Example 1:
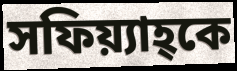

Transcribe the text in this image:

সফিয়্যাহ্কে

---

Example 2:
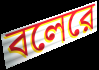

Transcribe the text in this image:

বলেরে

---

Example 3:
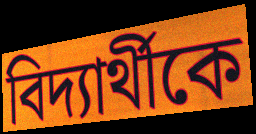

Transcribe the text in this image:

বিদ্যার্থীকে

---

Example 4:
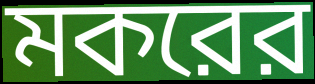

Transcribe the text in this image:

মকরের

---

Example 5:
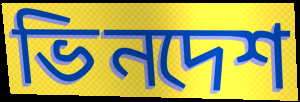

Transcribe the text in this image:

ভিনদেশ